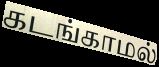
கடங்காமல்